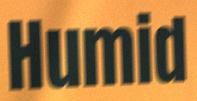
Humid